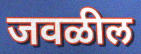
जवळील